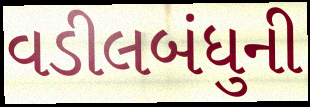
વડીલબંધુની